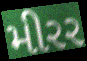
મીરર